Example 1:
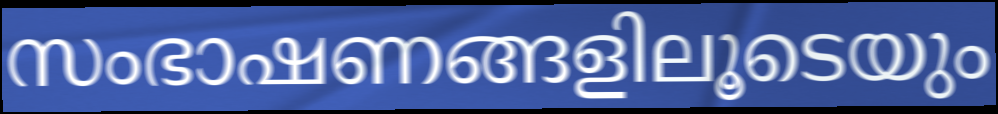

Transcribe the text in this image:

സംഭാഷണങ്ങളിലൂടെയും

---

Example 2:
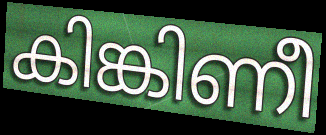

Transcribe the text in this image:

കിങ്കിണീ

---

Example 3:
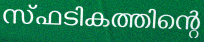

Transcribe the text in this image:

സ്ഫടികത്തിന്റെ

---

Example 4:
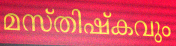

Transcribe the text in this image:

മസ്തിഷ്കവും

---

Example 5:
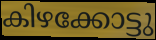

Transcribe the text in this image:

കിഴക്കോട്ടു